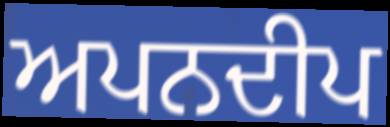
ਅਪਨਦੀਪ